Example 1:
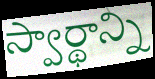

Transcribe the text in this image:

స్వార్థాన్ని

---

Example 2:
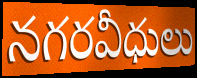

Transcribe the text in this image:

నగరవీధులు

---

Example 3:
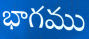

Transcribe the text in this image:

భాగము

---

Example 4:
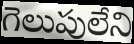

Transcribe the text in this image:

గెలుపులేని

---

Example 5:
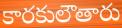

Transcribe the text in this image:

కారకులౌతారు